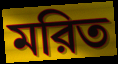
মরিত